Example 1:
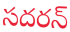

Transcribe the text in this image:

సదరన్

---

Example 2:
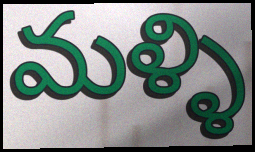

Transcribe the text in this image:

మళ్ళి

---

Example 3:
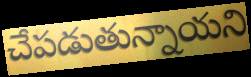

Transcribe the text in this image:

చేపడుతున్నాయని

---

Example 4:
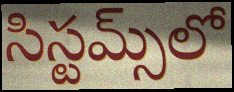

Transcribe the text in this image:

సిస్టమ్స్‌లో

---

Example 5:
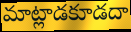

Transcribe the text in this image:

మాట్లాడకూడదా